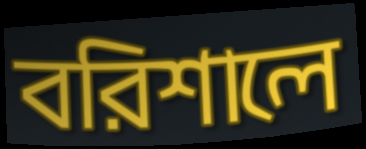
বরিশালে